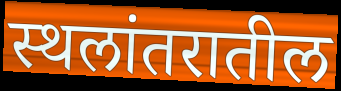
स्थलांतरातील